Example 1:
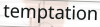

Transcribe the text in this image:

temptation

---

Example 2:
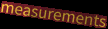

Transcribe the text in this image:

measurements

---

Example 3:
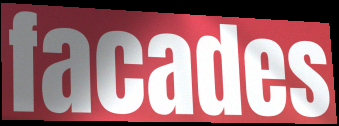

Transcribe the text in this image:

facades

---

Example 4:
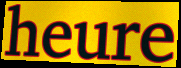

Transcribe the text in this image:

heure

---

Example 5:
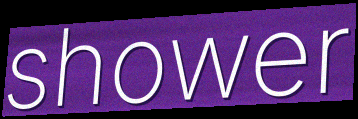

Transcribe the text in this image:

shower